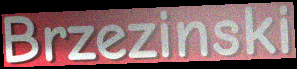
Brzezinski